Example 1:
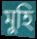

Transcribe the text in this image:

মুহি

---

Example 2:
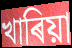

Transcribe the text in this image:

খাৰিয়া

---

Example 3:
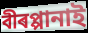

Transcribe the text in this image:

বীৰপ্পানাই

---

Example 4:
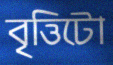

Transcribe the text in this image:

বৃত্তিটো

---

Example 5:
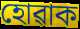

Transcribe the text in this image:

হোৱাক